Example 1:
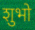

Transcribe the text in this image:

शुभो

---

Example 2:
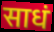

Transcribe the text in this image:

साधं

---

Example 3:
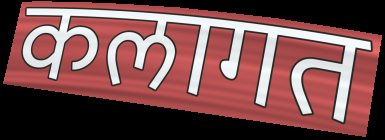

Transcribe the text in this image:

कलागत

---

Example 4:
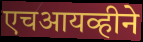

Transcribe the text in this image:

एचआयव्हीने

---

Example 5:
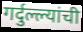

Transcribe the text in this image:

गर्दुल्ल्यांची